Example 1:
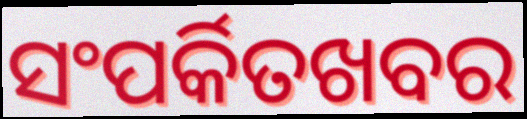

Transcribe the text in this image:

ସଂପର୍କିତଖବର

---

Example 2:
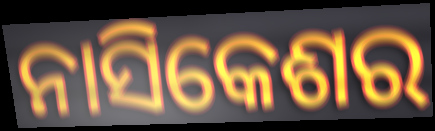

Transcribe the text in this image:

ନାସିକେଶର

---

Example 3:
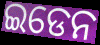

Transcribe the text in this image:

ଇଡେନ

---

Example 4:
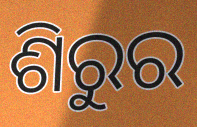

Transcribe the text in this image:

ଶିରୁର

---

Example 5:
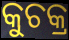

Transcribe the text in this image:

କୁଚକ୍ର